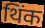
थिंक